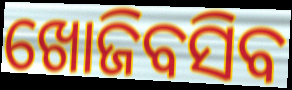
ଖୋଜିବସିବ